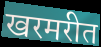
खरमरीत